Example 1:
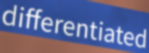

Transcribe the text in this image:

differentiated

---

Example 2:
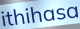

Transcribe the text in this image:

ithihasa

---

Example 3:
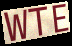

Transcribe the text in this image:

WTE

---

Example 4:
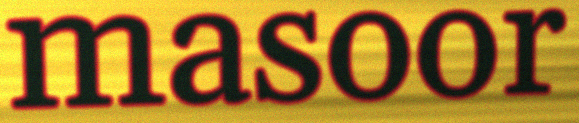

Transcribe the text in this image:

masoor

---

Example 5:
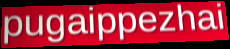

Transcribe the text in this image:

pugaippezhai